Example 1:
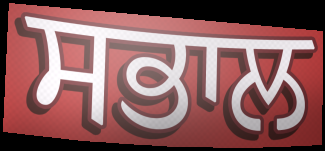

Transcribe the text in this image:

ਸਭਾਲ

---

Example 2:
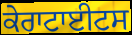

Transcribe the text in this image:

ਕੇਰਾਟਾਈਟਸ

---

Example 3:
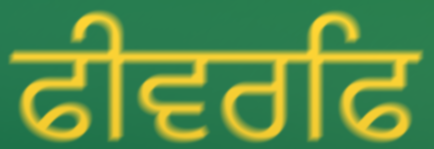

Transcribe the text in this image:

ਫੀਵਰਫਿ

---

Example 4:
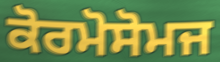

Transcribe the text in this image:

ਕੋਰਮੋਸੋਮਜ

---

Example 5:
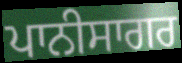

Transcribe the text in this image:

ਪਾਨੀਸਾਗਰ